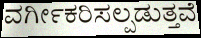
ವರ್ಗೀಕರಿಸಲ್ಪಡುತ್ತವೆ